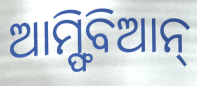
ଆମ୍ଫିବିଆନ୍